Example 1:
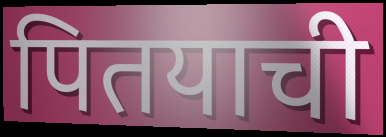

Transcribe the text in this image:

पितयाची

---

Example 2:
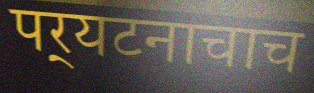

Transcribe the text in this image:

पर्यटनाचाच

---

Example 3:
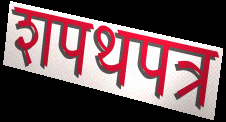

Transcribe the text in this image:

शपथपत्र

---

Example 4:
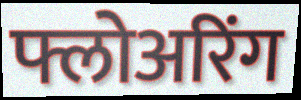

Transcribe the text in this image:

फ्लोअरिंग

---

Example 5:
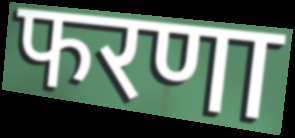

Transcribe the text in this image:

फरणा